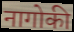
नागोकी